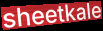
sheetkale